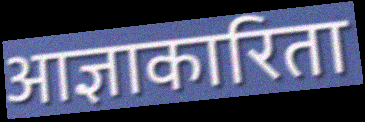
आज्ञाकारिता